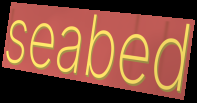
seabed